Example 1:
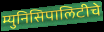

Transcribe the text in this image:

म्युनिसिपालिटीचे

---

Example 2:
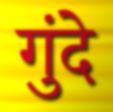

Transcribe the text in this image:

गुंदे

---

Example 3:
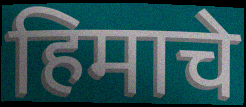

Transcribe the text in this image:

हिमाचे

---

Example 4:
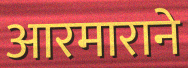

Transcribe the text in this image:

आरमाराने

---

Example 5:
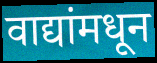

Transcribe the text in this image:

वाद्यांमधून